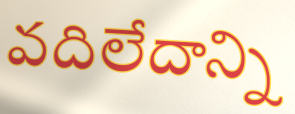
వదిలేదాన్ని